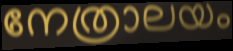
നേത്രാലയം